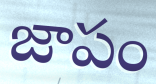
జాపం